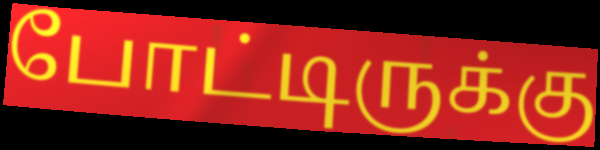
போட்டிருக்கு